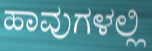
ಹಾವುಗಳಲ್ಲಿ